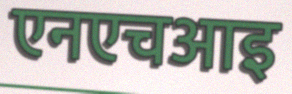
एनएचआइ